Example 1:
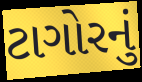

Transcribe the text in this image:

ટાગોરનું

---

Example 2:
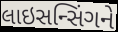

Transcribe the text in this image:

લાઇસન્સિંગને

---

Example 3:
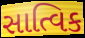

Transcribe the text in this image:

સાત્વિક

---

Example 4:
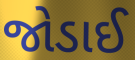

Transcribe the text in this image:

જોડાઈ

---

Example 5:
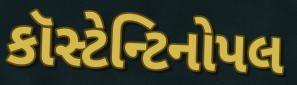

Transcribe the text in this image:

કૉસ્ટેન્ટિનોપલ